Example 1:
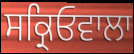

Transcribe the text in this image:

ਸਕ੍ਰਿਓਵਾਲਾ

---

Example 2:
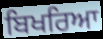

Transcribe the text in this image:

ਬਿਖਰਿਆ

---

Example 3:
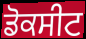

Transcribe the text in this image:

ਡੋਕਸੀਟ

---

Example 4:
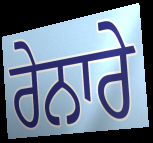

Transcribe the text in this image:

ਰੇਨਾਰੇ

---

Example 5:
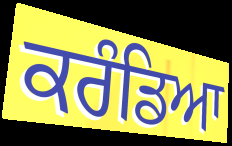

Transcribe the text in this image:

ਕਰੰਡਿਆ